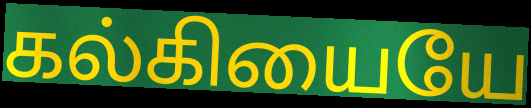
கல்கியையே